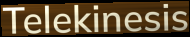
Telekinesis